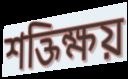
শক্তিক্ষয়